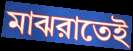
মাঝরাতেই